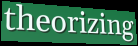
theorizing